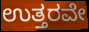
ಉತ್ತರವೇ